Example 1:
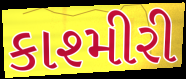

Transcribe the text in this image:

કાશ્મીરી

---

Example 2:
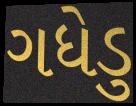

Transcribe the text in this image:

ગધેડુ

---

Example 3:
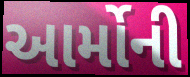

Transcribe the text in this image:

આર્મોની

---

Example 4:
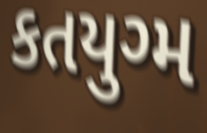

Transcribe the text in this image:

કતયુગ્મ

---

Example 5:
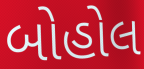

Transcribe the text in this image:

બોહોલ